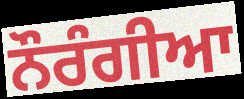
ਨੌਰੰਗੀਆ